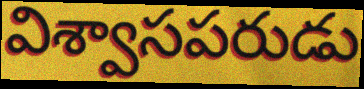
విశ్వాసపరుడు